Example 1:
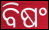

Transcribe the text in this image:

ବିଷଂ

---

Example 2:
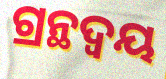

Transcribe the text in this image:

ଗ୍ରନ୍ଥଦ୍ଵୟ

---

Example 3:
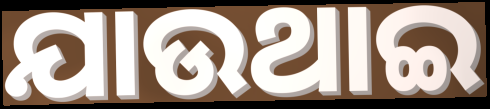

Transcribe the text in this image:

ଯାଉଥାଇ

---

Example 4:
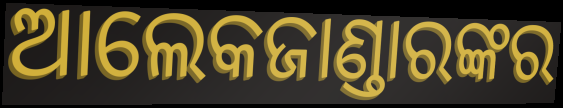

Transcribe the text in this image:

ଆଲେକଜାଣ୍ଡାରଙ୍କର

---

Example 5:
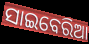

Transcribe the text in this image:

ସାଇବେରିଆ